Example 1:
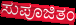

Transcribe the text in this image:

ಸುಪೂಜಿತಂ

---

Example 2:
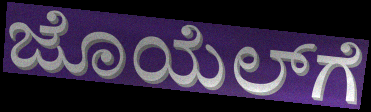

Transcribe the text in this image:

ಜೊಯೆಲ್‌ಗೆ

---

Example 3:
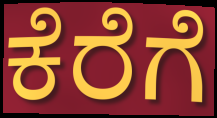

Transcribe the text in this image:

ಕೆರೆಗೆ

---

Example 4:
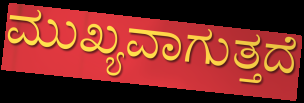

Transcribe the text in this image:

ಮುಖ್ಯವಾಗುತ್ತದೆ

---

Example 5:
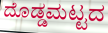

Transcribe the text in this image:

ದೊಡ್ಡಮಟ್ಟದ